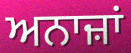
ਅਨਾਜ਼ਾਂ